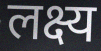
लक्ष्‍य